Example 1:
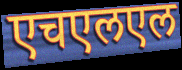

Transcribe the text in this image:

एचएलएल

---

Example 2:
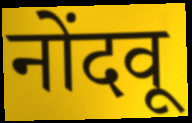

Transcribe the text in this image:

नोंदवू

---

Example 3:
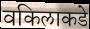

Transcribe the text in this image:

वकिलाकडे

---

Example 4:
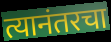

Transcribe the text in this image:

त्यानंतरचा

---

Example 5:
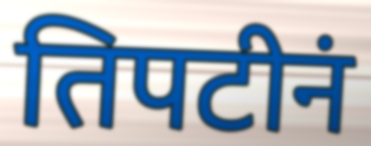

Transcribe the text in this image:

तिपटीनं